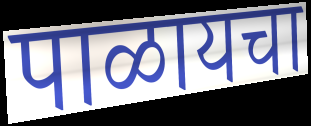
पाळायचा